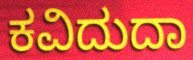
ಕವಿದುದಾ